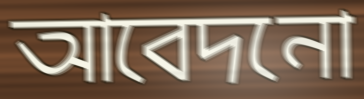
আবেদনো